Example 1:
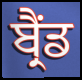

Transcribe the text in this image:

ਬ੍ਰੈਂਡ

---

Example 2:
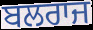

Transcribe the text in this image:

ਬਲਰਾਜ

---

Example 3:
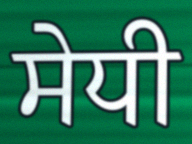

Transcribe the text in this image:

ਸੇਧੀ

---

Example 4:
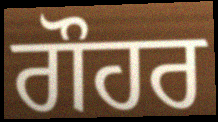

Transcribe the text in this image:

ਗੌਹਰ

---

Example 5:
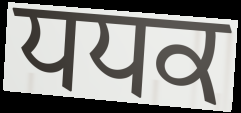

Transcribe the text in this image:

ਧਧਕ